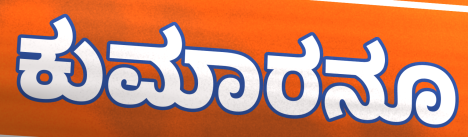
ಕುಮಾರನೂ